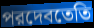
পরদেবতেতি